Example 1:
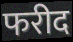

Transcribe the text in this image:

फरीद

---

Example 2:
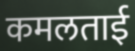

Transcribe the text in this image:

कमलताई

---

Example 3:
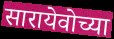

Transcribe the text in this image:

सारायेवोच्या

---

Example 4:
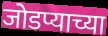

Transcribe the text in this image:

जोडप्याच्या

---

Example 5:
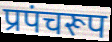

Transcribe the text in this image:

प्रपंचरूप